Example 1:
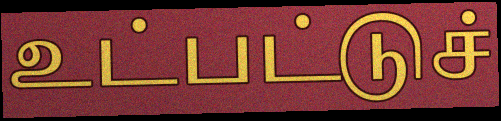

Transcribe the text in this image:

உட்பட்டுச்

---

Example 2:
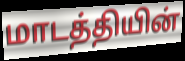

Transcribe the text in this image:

மாடத்தியின்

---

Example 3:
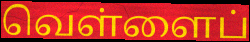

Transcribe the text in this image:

வெள்ளைப்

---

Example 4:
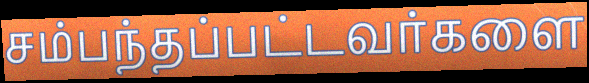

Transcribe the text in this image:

சம்பந்தப்பட்டவர்களை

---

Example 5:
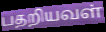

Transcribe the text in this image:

பதறியவள்